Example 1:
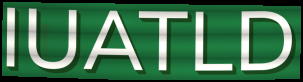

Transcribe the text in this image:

IUATLD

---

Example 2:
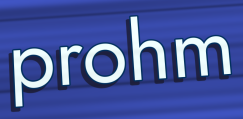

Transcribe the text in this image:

prohm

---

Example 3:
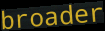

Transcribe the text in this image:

broader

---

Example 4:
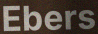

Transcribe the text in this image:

Ebers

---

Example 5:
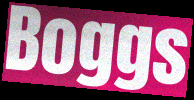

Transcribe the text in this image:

Boggs